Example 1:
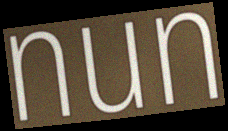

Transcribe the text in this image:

nun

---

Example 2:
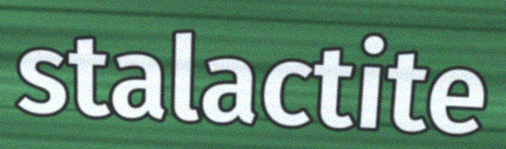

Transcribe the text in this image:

stalactite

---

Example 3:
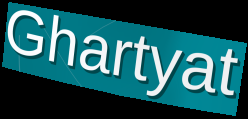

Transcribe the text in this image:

Ghartyat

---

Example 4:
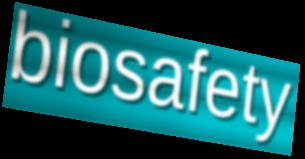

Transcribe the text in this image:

biosafety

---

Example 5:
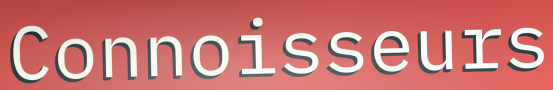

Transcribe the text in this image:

Connoisseurs